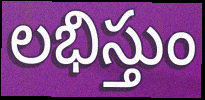
లభిస్తుం